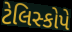
ટેલિસ્કોપે